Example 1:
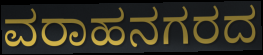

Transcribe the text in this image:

ವರಾಹನಗರದ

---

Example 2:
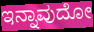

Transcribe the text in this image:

ಇನ್ನಾವುದೋ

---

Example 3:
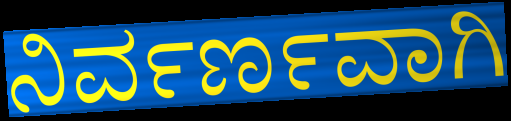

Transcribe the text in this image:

ನಿರ್ವರ್ಣವಾಗಿ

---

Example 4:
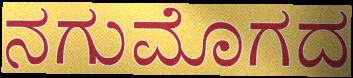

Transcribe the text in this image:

ನಗುಮೊಗದ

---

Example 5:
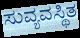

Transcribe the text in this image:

ಸುವ್ಯವಸ್ಥಿತ